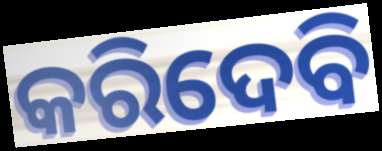
କରିଦେବି